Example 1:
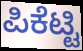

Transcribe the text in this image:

ಪಿಕೆಟ್ಟಿ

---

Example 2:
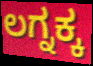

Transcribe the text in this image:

ಲಗ್ನಕ್ಕ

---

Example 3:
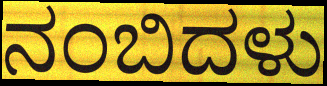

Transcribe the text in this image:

ನಂಬಿದಳು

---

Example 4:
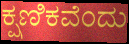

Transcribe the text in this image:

ಕ್ಷಣಿಕವೆಂದು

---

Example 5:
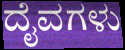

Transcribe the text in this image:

ದೈವಗಳು